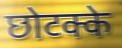
छोटक्के